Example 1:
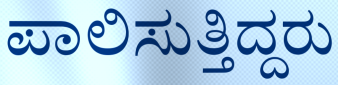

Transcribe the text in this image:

ಪಾಲಿಸುತ್ತಿದ್ದರು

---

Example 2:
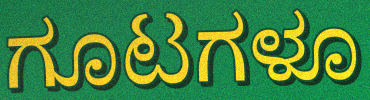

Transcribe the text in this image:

ಗೂಟಗಳೂ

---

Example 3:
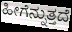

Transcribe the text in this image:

ಹೀಗೆನ್ನುತ್ತದೆ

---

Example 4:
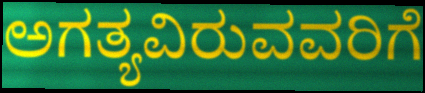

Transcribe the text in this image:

ಅಗತ್ಯವಿರುವವರಿಗೆ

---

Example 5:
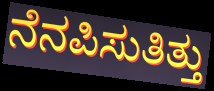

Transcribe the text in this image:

ನೆನಪಿಸುತಿತ್ತು